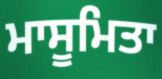
ਮਾਸੂਮਿਤਾ